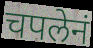
चपलेनं